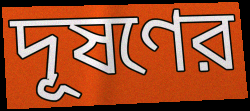
দূষণের